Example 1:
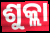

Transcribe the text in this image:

ଶୁକ୍ଲା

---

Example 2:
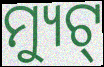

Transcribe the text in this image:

ମ୍ୟୁଟ୍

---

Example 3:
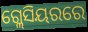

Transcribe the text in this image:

ଗ୍ଲେସିୟରରେ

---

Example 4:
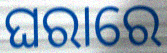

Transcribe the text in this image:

ଘରାରେ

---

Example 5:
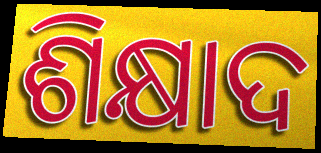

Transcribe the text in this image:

ଶିକ୍ଷାଦ